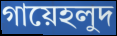
গায়েহলুদ